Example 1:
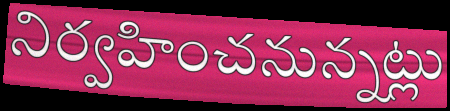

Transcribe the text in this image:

నిర్వహించనున్నట్లు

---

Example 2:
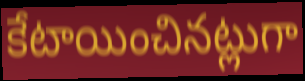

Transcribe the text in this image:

కేటాయించినట్లుగా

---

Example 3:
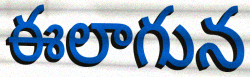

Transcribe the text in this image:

ఈలాగున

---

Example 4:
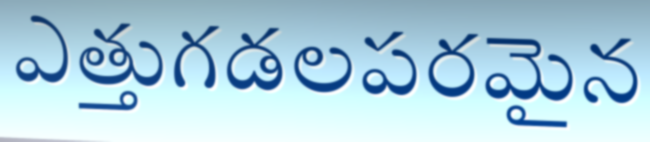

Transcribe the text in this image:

ఎత్తుగడలపరమైన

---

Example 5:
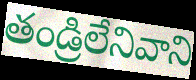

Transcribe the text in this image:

తండ్రిలేనివాని